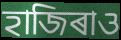
হাজিৰাও